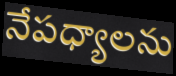
నేపధ్యాలను